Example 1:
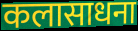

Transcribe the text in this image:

कलासाधना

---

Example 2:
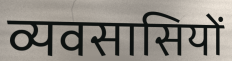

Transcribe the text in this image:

व्यवसासियों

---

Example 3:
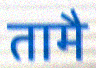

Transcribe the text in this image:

तामै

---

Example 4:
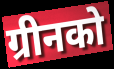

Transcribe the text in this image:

ग्रीनको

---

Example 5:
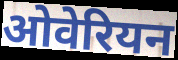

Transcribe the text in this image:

ओवेरियन